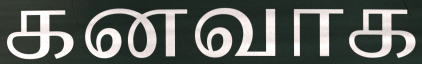
கனவாக